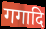
गगादि